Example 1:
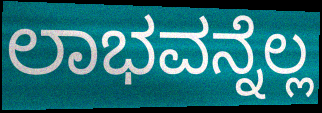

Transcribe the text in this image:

ಲಾಭವನ್ನೆಲ್ಲ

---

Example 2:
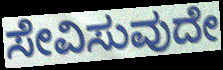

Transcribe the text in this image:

ಸೇವಿಸುವುದೇ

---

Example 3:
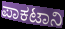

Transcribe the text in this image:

ಪಾಕಟಾನಿ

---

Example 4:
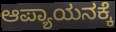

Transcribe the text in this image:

ಆಪ್ಯಾಯನಕ್ಕೆ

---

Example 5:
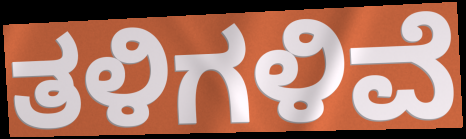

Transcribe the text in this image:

ತಳಿಗಳಿವೆ